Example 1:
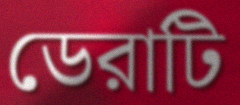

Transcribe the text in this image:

ডেরাটি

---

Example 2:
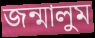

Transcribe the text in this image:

জন্মালুম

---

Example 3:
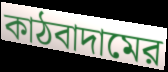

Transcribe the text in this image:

কাঠবাদামের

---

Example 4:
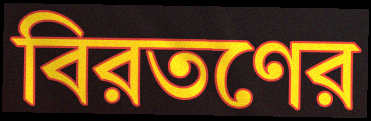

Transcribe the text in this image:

বিরতণের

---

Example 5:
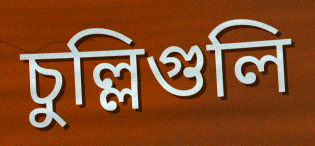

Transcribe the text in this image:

চুল্লিগুলি